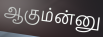
ஆகும்ன்னு